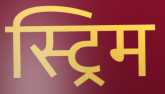
स्ट्रिम